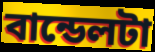
বান্ডেলটা